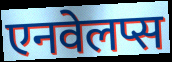
एनवेलप्स